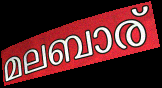
മലബാര്